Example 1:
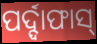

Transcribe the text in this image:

ପର୍ଦ୍ଦାଫାସ୍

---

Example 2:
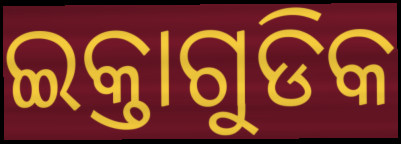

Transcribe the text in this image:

ଇକ୍ତାଗୁଡିକ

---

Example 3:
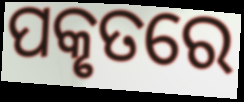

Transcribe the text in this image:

ପକୃତରେ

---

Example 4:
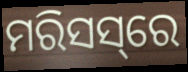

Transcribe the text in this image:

ମରିସସ୍‌ରେ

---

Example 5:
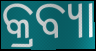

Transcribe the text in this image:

କ୍ରବ୍ୟା